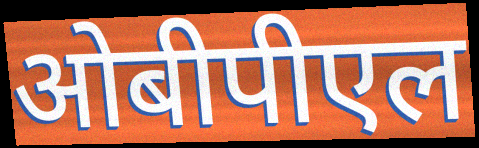
ओबीपीएल